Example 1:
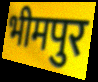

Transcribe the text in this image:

भीमपुर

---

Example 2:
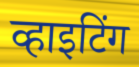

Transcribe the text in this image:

व्हाइटिंग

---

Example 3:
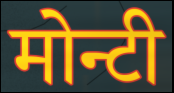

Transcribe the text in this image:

मोन्टी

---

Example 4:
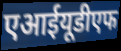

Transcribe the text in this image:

एआईयूडीएफ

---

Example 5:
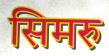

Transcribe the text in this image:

सिमरु